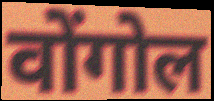
वोंगोल